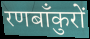
रणबाँकुरों